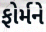
ફોર્મને